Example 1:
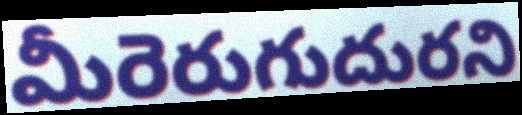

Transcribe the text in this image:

మీరెరుగుదురని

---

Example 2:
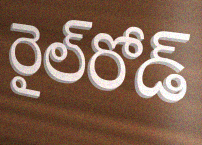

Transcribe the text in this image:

రైల్‌రోడ్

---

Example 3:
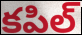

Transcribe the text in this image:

కపిల్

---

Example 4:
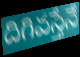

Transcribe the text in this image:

దిగివస్తేనే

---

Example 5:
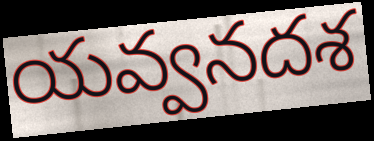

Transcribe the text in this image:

యవ్వనదశ